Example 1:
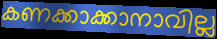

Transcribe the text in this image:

കണക്കാക്കാനാവില്ല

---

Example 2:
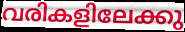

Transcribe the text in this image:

വരികളിലേക്കു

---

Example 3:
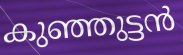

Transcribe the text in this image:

കുഞ്ഞുട്ടൻ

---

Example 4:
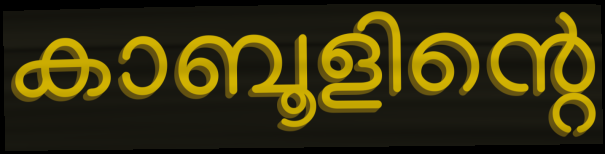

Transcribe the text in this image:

കാബൂളിന്റെ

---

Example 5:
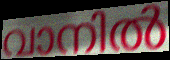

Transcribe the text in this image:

വാനിൽ